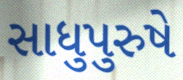
સાધુપુરુષે